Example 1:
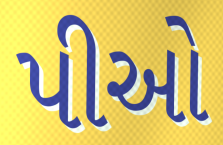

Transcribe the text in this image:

પીઓ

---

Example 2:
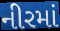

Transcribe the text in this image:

નીરમાં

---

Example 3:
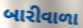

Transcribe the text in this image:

બારીવાળા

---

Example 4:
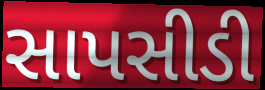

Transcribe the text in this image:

સાપસીડી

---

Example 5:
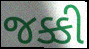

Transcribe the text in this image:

જક્કી